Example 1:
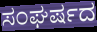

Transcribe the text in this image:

ಸಂಘರ್ಷದ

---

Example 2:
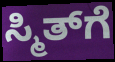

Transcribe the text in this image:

ಸ್ಮಿತ್‌ಗೆ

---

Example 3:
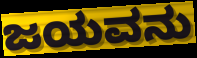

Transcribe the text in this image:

ಜಯವನು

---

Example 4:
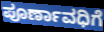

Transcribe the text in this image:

ಪೂರ್ಣಾವಧಿಗೆ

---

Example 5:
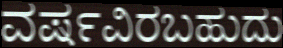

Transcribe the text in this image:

ವರ್ಷವಿರಬಹುದು